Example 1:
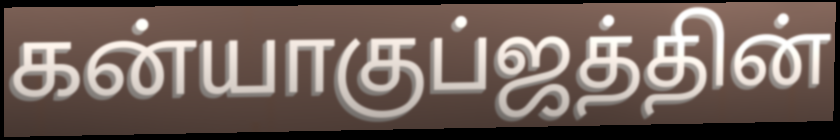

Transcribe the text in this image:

கன்யாகுப்ஜத்தின்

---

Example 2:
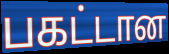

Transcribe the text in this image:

பகட்டான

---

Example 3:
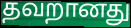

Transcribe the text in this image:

தவறானது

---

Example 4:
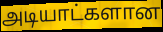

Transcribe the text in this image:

அடியாட்களான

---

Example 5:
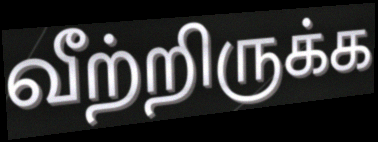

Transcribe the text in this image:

வீற்றிருக்க